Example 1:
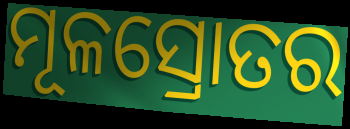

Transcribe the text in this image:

ମୂଳସ୍ରୋତର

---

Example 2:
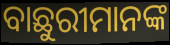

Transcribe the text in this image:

ବାଛୁରୀମାନଙ୍କ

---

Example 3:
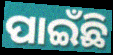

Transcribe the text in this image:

ପାଇଁଛି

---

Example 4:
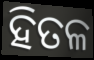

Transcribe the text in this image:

ହିତଳ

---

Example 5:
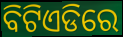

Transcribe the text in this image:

ବିଟିଏଡିରେ